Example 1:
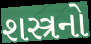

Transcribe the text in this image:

શસ્ત્રનો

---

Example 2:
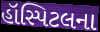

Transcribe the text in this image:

હૉસ્પિટલના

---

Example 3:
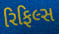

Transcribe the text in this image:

રિફિલ્સ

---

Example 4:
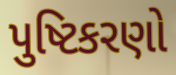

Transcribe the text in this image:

પુષ્ટિકરણો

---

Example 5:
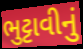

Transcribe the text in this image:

ભુટ્ટાવીનું